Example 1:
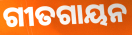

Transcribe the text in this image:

ଗୀତଗାୟନ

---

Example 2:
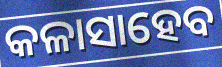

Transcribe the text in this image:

କଳାସାହେବ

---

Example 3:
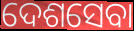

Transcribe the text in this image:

ଦେଶସେବା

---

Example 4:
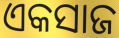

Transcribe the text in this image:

ଏକସାଜ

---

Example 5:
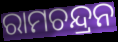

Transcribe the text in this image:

ରାମଚନ୍ଦ୍ରନ